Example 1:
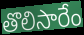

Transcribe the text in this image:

తొలిసారేం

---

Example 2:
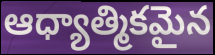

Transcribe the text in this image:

ఆధ్యాత్మికమైన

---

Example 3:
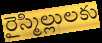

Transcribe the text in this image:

రైస్మిల్లులకు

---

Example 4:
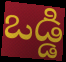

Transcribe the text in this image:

ఒడ్డి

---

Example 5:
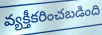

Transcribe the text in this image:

వ్యక్తీకరించబడింది